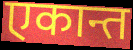
एकान्त